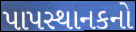
પાપસ્થાનકનો